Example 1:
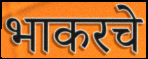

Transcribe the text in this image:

भाकरचे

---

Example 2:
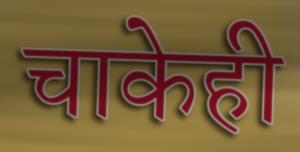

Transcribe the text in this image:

चाकेही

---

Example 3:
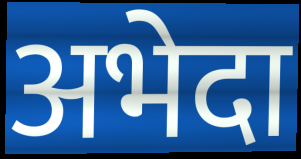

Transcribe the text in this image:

अभेदा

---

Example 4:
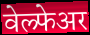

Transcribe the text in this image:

वेल्फेअर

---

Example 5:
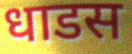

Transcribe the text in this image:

धाडस